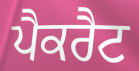
ਪੈਕਰੈਟ